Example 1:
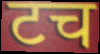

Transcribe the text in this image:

टच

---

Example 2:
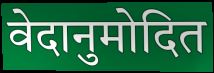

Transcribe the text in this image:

वेदानुमोदित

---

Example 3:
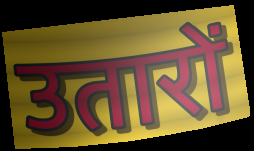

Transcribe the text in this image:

उतारों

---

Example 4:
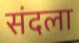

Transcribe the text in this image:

संदला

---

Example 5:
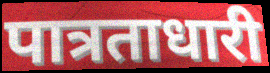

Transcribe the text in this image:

पात्रताधारी